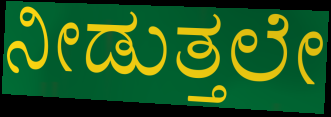
ನೀಡುತ್ತಲೇ